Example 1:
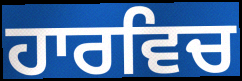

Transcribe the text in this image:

ਹਾਰਵਿਚ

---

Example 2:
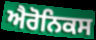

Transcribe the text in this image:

ਐਰੋਨਿਕਸ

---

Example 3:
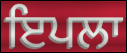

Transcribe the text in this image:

ਇਪਲਾ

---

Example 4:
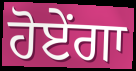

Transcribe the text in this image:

ਹੋਏਂਗਾ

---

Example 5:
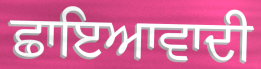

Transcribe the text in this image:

ਛਾਇਆਵਾਦੀ